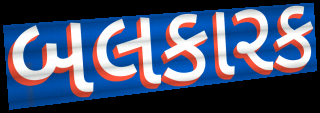
બલકારક